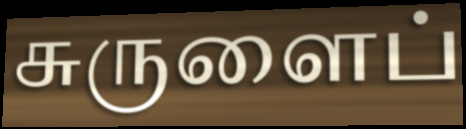
சுருளைப்